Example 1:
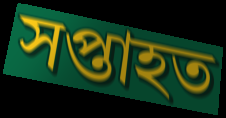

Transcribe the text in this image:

সপ্তাহত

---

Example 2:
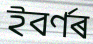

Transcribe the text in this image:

ইবৰ্ণৰ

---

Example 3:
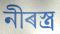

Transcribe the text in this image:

নীৰস্ত্ৰ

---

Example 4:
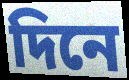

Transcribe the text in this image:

দিনে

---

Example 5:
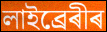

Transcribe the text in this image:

লাইব্ৰেৰীৰ